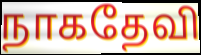
நாகதேவி